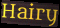
Hairy